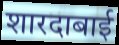
शारदाबाई